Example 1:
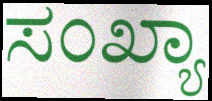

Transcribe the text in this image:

ಸಂಖ್ಯಾ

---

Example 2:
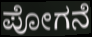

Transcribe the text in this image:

ಪೋಗನೆ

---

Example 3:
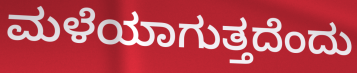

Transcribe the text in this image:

ಮಳೆಯಾಗುತ್ತದೆಂದು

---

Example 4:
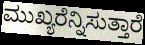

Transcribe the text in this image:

ಮುಖ್ಯರೆನ್ನಿಸುತ್ತಾರೆ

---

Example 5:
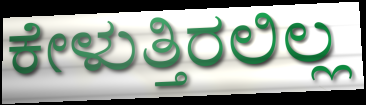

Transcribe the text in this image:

ಕೇಳುತ್ತಿರಲಿಲ್ಲ